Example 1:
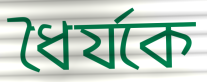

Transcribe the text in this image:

ধৈর্যকে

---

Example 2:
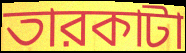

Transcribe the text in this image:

তারকাটা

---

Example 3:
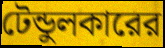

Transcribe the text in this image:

টেন্ডুলকারের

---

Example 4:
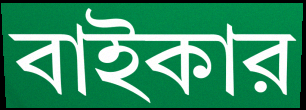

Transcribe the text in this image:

বাইকার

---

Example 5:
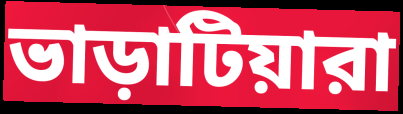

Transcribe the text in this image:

ভাড়াটিয়ারা